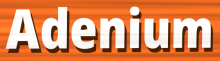
Adenium